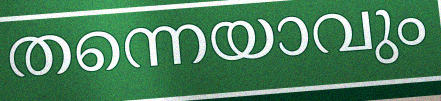
തന്നെയാവും